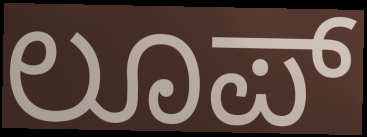
ಲೂಪ್